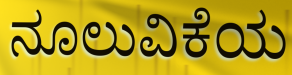
ನೂಲುವಿಕೆಯ